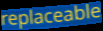
replaceable